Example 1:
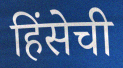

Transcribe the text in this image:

हिंसेची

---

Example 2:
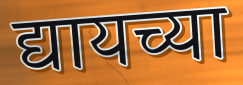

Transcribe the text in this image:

द्यायच्या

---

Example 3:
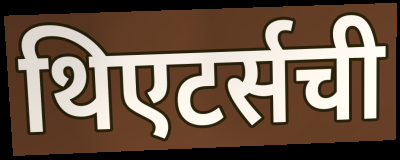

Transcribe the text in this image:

थिएटर्सची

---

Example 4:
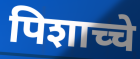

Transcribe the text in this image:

पिशाच्चे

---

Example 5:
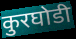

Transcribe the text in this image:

कुरघोडी